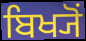
ਬਿਖ੍ਯੋਂ